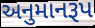
અનુમાનરૂપ